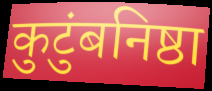
कुटुंबनिष्ठा